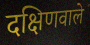
दक्षिणवाले